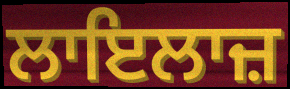
ਲਾਇਲਾਜ਼